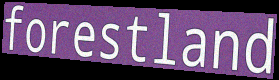
forestland